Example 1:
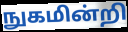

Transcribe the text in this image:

நுகமின்றி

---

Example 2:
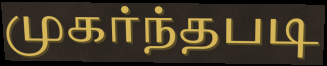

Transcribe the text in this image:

முகர்ந்தபடி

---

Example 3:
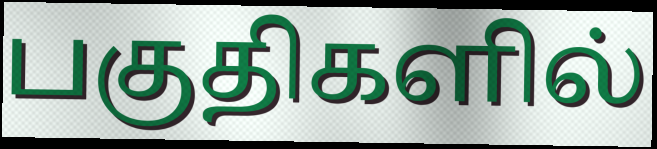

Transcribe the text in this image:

பகுதிகளில்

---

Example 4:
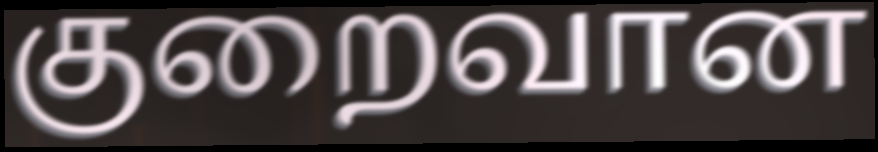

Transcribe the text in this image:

குறைவான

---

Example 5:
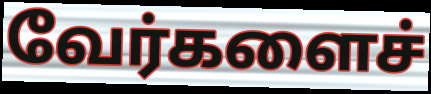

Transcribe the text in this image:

வேர்களைச்